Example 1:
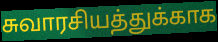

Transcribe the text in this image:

சுவாரசியத்துக்காக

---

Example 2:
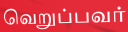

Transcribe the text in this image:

வெறுப்பவர்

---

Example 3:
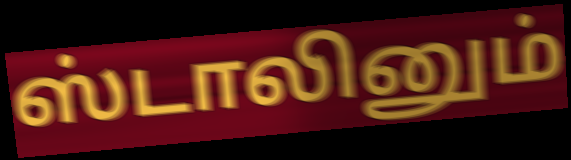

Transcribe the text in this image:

ஸ்டாலினும்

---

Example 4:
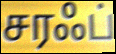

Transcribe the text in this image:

சரஃப்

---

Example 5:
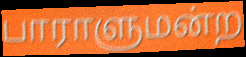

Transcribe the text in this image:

பாராளுமன்ற